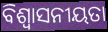
ବିଶ୍ୱାସନୀୟତା